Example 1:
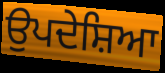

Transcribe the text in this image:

ਉਪਦੇਸ਼ਿਆ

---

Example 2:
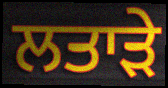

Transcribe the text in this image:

ਲਤਾਡ਼ੇ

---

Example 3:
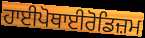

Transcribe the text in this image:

ਹਾਈਪੋਥਾਈਰੋਡਿਜ਼ਮ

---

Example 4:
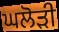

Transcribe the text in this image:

ਘਲੋਡ਼ੀ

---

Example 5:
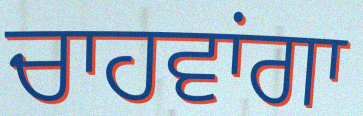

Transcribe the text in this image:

ਚਾਹਵਾਂਗਾ